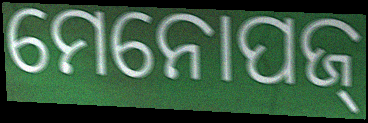
ମେନୋପଜ୍